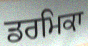
ਡਰਮਿਕਾ